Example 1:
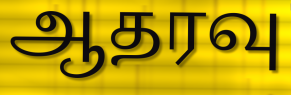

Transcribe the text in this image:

ஆதரவு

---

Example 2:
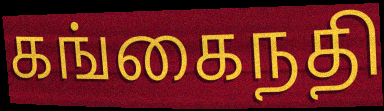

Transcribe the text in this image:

கங்கைநதி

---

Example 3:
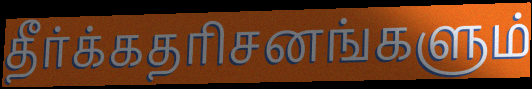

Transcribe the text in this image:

தீர்க்கதரிசனங்களும்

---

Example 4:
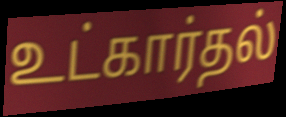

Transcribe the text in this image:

உட்கார்தல்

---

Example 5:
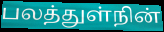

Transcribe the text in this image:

பலத்துள்நின்